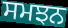
ਸਮਝਨ